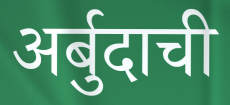
अर्बुदाची